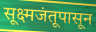
सूक्ष्मजंतूपासून